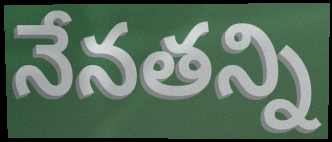
నేనతన్ని